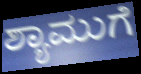
ಶ್ಯಾಮುಗೆ